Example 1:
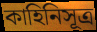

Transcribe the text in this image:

কাহিনিসূত্র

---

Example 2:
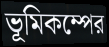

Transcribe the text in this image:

ভূমিকম্পের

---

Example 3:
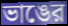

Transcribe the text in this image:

ভাঙের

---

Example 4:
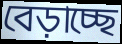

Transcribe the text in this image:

বেড়াচ্ছে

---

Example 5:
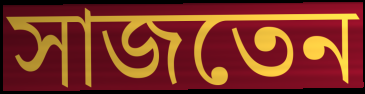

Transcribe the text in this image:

সাজতেন